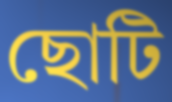
ছোটি